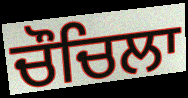
ਚੌਚਿਲਾ